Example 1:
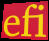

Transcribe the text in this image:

efi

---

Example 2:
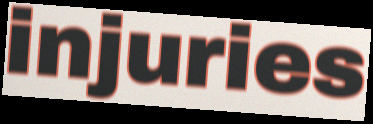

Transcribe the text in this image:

injuries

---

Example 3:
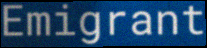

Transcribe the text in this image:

Emigrant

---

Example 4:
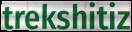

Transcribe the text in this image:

trekshitiz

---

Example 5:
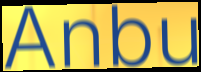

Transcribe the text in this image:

Anbu